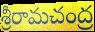
శ్రీరామచంద్ర